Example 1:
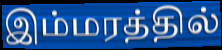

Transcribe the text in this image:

இம்மரத்தில்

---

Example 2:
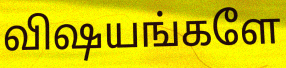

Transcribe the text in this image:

விஷயங்களே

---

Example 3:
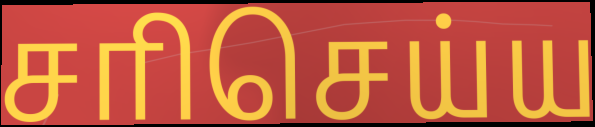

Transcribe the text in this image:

சரிசெய்ய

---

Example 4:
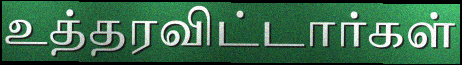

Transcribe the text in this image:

உத்தரவிட்டார்கள்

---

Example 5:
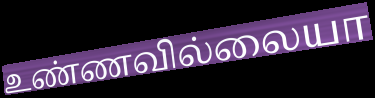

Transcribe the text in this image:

உண்ணவில்லையா